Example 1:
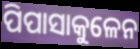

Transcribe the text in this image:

ପିପାସାକୁଳେନ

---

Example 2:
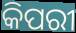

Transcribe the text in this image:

କିପରୀ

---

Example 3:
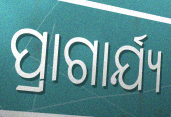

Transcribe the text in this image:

ପ୍ରାଗାର୍ଯ୍ୟ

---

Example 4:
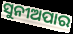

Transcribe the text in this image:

ସୁନୀଅପାର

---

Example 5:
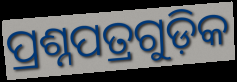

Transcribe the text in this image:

ପ୍ରଶ୍ନପତ୍ରଗୁଡ଼ିକ